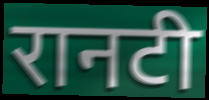
रानटी